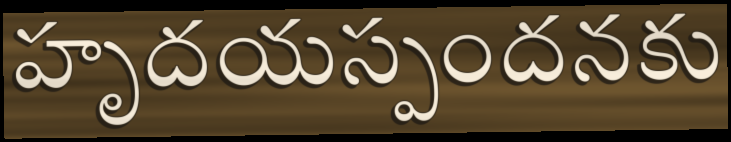
హృదయస్పందనకు